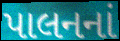
પાલનનાં